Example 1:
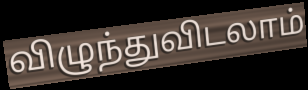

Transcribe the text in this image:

விழுந்துவிடலாம்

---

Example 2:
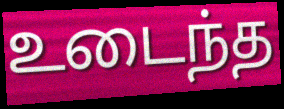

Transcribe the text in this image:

உடைந்த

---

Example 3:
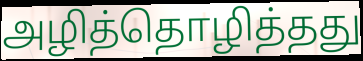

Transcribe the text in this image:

அழித்தொழித்தது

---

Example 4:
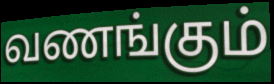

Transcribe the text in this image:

வணங்கும்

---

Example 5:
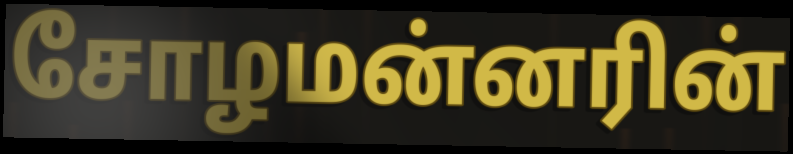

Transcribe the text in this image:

சோழமன்னரின்